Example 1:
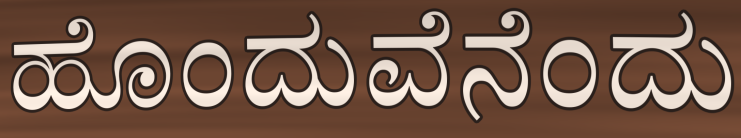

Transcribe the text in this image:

ಹೊಂದುವೆನೆಂದು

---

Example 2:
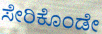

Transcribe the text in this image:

ಸೇರಿಕೊಂಡೇ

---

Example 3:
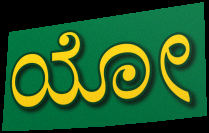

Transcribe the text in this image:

ಯೋ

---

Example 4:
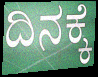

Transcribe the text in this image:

ದಿನಕ್ಕೆ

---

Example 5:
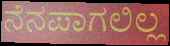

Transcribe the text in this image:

ನೆನಪಾಗಲಿಲ್ಲ